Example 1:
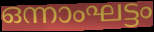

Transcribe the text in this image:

ഒന്നാംഘട്ടം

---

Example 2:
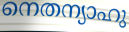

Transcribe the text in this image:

നെതന്യാഹു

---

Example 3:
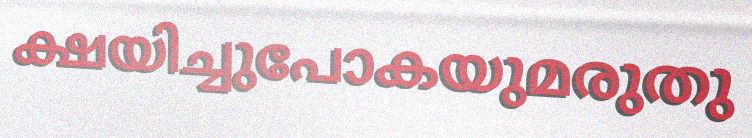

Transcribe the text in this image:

ക്ഷയിച്ചുപോകയുമരുതു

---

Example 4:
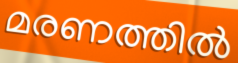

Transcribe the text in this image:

മരണത്തിൽ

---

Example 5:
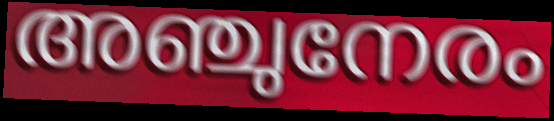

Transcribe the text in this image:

അഞ്ചുനേരം